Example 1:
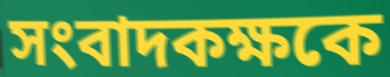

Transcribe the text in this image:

সংবাদকক্ষকে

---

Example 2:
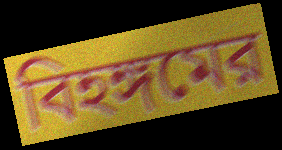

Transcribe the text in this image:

বিহঙ্গমের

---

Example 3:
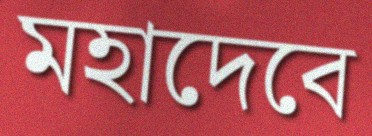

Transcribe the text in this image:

মহাদেবে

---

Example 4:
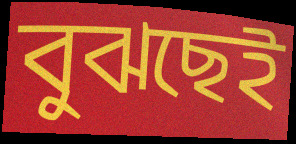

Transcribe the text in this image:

বুঝছেই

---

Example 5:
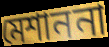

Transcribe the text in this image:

মেশাননা